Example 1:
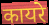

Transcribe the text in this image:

कायरे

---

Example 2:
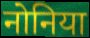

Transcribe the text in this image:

नोनिया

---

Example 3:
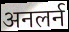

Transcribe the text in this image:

अनलर्न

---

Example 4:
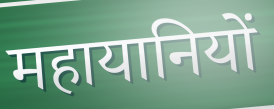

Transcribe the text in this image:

महायानियों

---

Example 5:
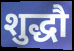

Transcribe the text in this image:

शुद्धौ